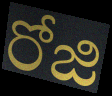
రోజి